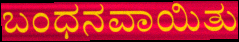
ಬಂಧನವಾಯಿತು